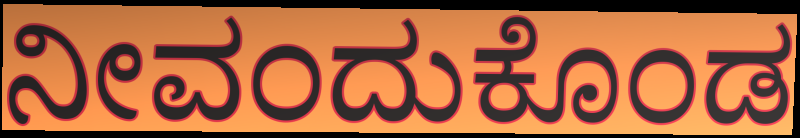
ನೀವಂದುಕೊಂಡ